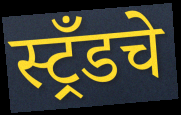
स्ट्रँडचे